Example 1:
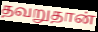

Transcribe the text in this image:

தவறுதான்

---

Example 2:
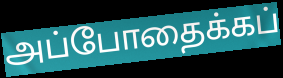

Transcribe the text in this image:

அப்போதைக்கப்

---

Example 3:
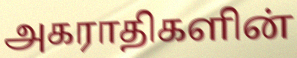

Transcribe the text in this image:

அகராதிகளின்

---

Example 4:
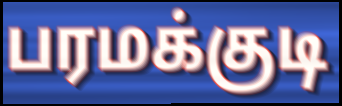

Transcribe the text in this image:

பரமக்குடி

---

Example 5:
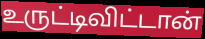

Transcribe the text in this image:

உருட்டிவிட்டான்